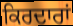
ਕਿਰਦਾਰਾਂ